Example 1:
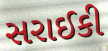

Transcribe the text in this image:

સરાઈકી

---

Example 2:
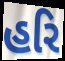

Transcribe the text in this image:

હરિ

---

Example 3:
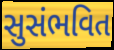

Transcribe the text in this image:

સુસંભવિત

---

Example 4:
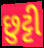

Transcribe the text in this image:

છુટ્ટી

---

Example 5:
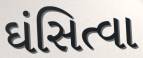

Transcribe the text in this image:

ઘંસિત્વા